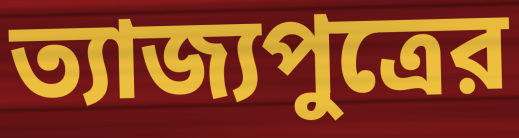
ত্যাজ্যপুত্রের